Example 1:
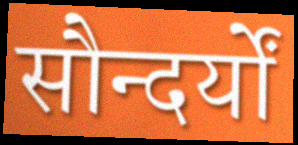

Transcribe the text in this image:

सौन्दर्यों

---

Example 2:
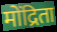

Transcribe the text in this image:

मोंद्रिता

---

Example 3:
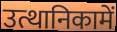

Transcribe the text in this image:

उत्थानिकामें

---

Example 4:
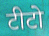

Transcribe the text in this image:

टीटो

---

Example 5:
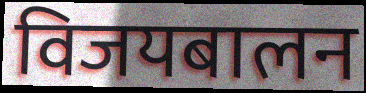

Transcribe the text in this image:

विजयबालन